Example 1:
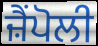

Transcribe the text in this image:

ਜ਼ੈਂਪੋਲੀ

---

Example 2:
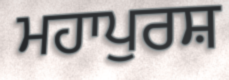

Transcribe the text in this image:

ਮਹਾਪੁਰਸ਼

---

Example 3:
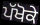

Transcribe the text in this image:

ਪੱਖੋਕੇ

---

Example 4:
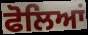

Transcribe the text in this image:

ਫੋਲਿਆਂ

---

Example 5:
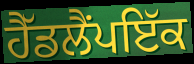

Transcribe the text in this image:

ਹੈੱਡਲੈਂਪਇੱਕ